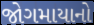
જોગમાયાનો